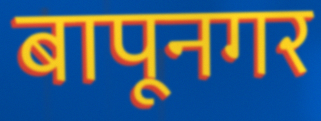
बापूनगर